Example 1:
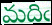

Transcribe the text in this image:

మదిఁ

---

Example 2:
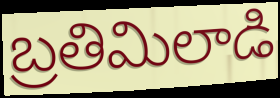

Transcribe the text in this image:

బ్రతిమిలాడి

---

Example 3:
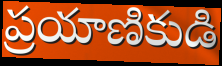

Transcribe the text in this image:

ప్రయాణికుడి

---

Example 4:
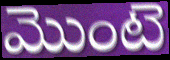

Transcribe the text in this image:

మొంటె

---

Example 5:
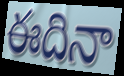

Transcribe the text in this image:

ఈదినా